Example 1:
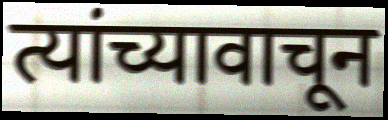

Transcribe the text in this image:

त्यांच्यावाचून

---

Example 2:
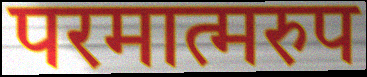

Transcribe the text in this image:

परमात्मरुप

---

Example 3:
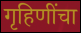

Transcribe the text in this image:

गृहिणींचा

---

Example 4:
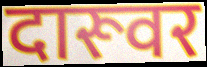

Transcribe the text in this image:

दारूवर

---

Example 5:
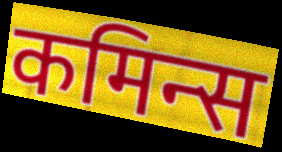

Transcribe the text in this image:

कमिन्स